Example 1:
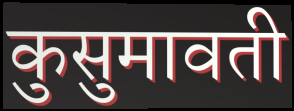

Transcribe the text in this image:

कुसुमावती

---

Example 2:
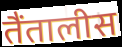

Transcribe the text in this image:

तैंतालीस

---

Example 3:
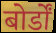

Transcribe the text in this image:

बोर्डों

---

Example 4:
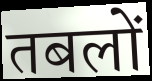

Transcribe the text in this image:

तबलों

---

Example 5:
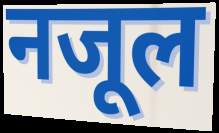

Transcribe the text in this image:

नजूल